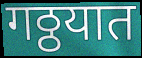
गठ्ठयात